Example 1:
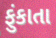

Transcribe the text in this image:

ફુંકાતા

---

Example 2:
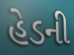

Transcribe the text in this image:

હેડની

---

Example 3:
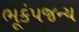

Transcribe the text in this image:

ભૂકંપજન્ય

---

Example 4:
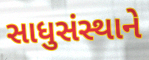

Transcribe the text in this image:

સાધુસંસ્થાને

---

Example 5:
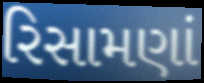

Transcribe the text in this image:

રિસામણાં